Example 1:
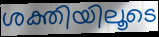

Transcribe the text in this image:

ശക്തിയിലൂടെ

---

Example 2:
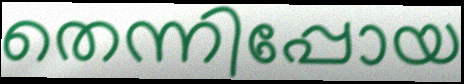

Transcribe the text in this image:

തെന്നിപ്പോയ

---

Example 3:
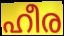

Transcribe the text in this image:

ഹീര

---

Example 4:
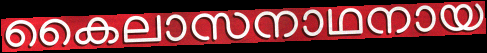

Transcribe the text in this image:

കൈലാസനാഥനായ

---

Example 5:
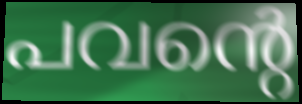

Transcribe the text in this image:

പവന്റെ